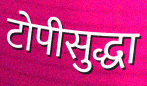
टोपीसुद्धा